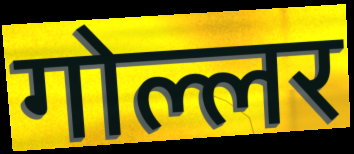
गोल्लर